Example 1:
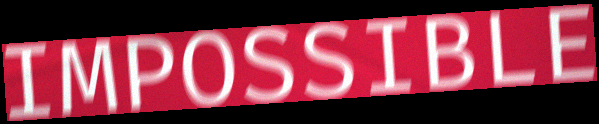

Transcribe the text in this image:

IMPOSSIBLE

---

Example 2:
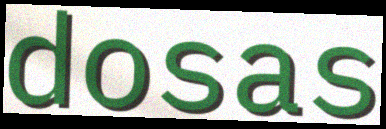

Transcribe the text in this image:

dosas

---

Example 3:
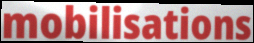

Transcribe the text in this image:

mobilisations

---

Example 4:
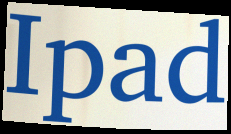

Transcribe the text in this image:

Ipad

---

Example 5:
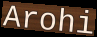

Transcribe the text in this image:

Arohi